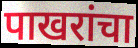
पाखरांचा